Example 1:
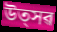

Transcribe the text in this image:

উত্সৱ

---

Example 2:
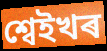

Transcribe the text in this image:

শ্বেইখৰ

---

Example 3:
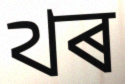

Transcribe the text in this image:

থৰ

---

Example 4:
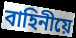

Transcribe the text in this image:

বাহিনীয়ে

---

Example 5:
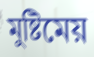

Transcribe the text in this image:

মুষ্টিমেয়